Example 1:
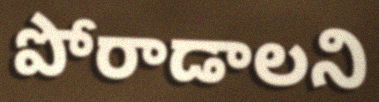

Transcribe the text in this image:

పోరాడాలని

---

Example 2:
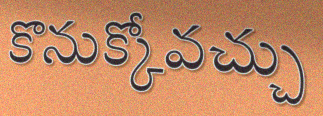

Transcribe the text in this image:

కొనుక్కోవచ్చు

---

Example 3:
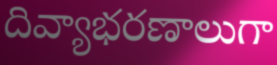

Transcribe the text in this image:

దివ్యాభరణాలుగా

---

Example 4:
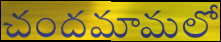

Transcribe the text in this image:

చందమామలో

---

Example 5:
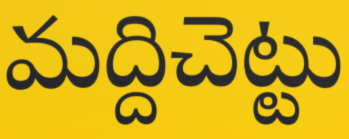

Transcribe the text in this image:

మద్దిచెట్టు